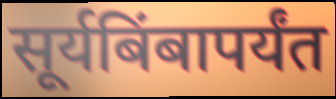
सूर्यबिंबापर्यंत